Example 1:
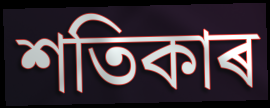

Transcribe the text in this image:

শতিকাৰ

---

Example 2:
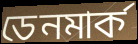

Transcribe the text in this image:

ডেনমাৰ্ক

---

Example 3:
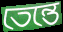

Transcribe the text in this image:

তেন্তে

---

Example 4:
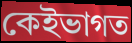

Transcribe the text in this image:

কেইভাগত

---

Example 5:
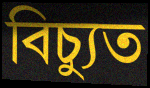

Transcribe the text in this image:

বিচ্যুত